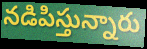
నడిపిస్తున్నారు